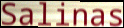
Salinas